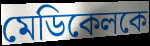
মেডিকেলকে